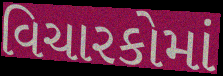
વિચારકોમાં